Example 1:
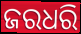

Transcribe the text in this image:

ଜରଧରି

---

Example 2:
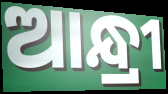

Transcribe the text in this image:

ଆନ୍ଧ୍ରୀ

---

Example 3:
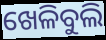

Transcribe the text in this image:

ଖେଳିବୁଲି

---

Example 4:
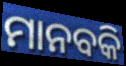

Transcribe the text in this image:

ମାନବକି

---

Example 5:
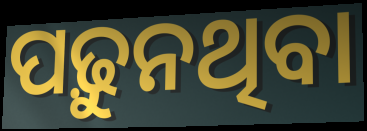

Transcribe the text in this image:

ପଢ଼ୁନଥିବା